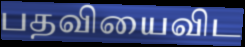
பதவியைவிட